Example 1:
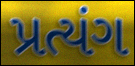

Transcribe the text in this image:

પ્રત્યંગ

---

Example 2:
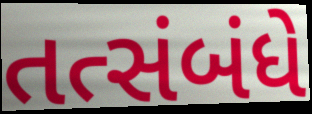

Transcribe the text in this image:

તત્સંબંધે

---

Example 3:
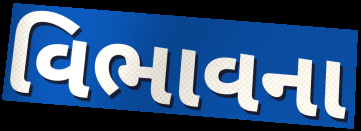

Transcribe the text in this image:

વિભાવના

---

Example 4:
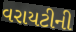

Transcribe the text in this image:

વરાયટીની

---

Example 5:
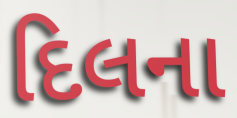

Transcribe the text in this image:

દિલના